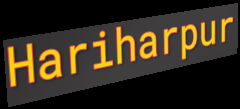
Hariharpur